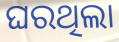
ଘରଥିଲା